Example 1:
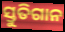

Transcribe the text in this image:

ସ୍ତୁତିଗାନ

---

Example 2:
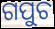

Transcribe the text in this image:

ଗପୁଚ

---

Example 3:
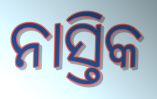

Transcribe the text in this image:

ନାସ୍ତିକ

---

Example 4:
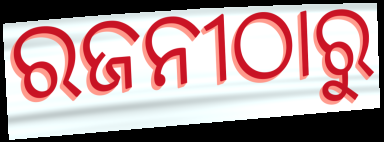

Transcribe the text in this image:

ରଜନୀଠାରୁ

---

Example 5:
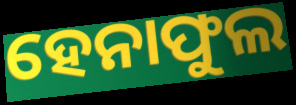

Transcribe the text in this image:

ହେନାଫୁଲ